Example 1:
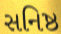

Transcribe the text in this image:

સનિષ્ઠ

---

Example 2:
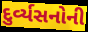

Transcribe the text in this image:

દુર્વ્યસનોની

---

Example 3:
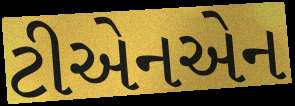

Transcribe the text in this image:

ટીએનએન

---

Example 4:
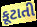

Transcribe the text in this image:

કૂટાતી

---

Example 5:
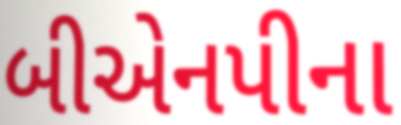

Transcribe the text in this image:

બીએનપીના